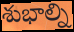
శుభాల్ని